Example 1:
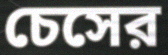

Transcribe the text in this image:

চেসের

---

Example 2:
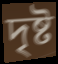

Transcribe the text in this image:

দৃষ্ট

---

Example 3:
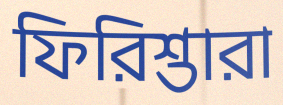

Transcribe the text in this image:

ফিরিশ্তারা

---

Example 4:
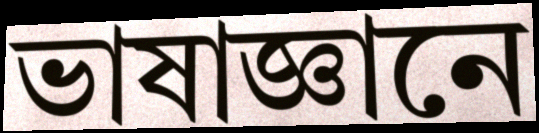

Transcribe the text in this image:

ভাষাজ্ঞানে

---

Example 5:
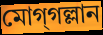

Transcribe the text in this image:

মোগ্‌গল্লান